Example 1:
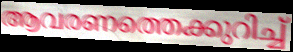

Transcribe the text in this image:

ആവരണത്തെക്കുറിച്ച്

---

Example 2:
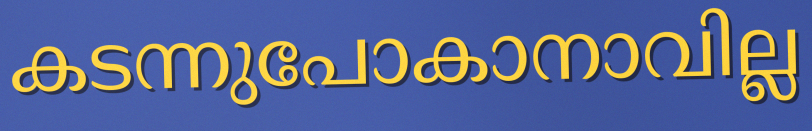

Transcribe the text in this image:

കടന്നുപോകാനാവില്ല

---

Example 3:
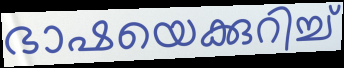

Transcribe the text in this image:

ഭാഷയെക്കുറിച്ച്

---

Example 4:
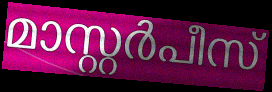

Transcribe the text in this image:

മാസ്റ്റർപീസ്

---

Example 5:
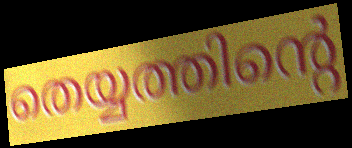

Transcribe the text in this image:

തെയ്യത്തിന്റെ